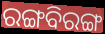
ରଙ୍ଗବିରଙ୍ଗ